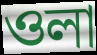
ওলা